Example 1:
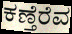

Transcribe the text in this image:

ಕಣ್ತೆರೆವ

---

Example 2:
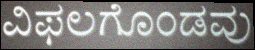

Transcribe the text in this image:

ವಿಫಲಗೊಂಡವು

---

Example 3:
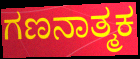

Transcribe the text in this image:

ಗಣನಾತ್ಮಕ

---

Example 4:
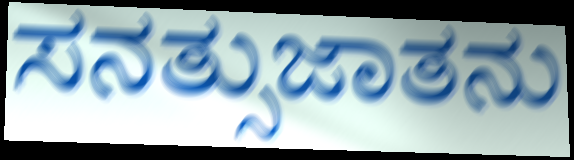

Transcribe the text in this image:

ಸನತ್ಸುಜಾತನು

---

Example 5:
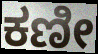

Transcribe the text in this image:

ಕಣೀ